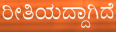
ರೀತಿಯದ್ದಾಗಿದೆ